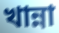
খান্না